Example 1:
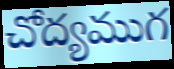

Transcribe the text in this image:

చోద్యముగ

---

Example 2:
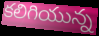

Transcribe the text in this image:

కలిగియున్న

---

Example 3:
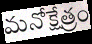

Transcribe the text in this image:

మనోక్షేత్రం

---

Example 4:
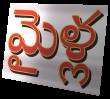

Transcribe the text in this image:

మైళ్ల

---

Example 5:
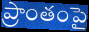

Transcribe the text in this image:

ప్రాంతంపై